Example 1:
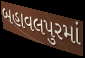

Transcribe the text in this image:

બહાવલપુરમાં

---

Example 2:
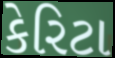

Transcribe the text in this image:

કેરિટા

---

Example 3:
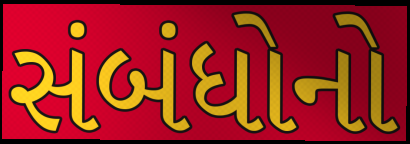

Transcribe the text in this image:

સંબંધોનો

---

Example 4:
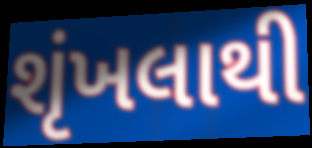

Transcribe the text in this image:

શૃંખલાથી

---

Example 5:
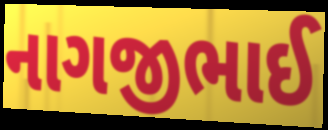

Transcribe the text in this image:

નાગજીભાઈ